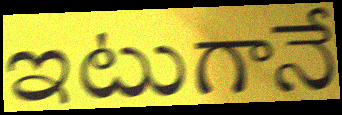
ఇటుగానే